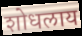
शोधलाय